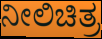
ನೀಲಿಚಿತ್ರ